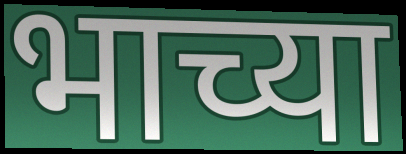
भाच्या